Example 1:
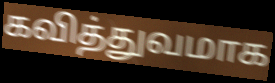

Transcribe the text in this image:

கவித்துவமாக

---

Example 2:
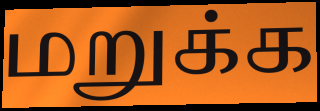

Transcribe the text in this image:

மறுக்க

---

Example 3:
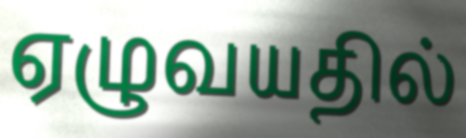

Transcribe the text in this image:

ஏழுவயதில்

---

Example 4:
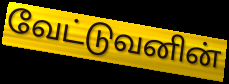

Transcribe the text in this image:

வேட்டுவனின்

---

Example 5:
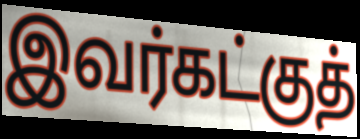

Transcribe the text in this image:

இவர்கட்குத்